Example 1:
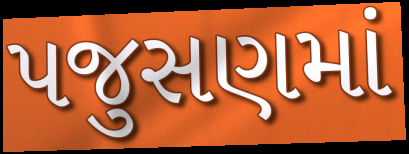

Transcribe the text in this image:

પજુસણમાં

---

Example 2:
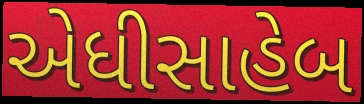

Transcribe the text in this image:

એધીસાહેબ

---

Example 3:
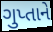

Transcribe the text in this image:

ગુપ્તાને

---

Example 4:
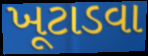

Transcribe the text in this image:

ખૂટાડવા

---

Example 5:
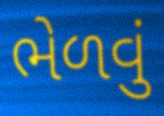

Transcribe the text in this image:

ભેળવું